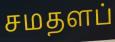
சமதளப்